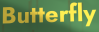
Butterfly